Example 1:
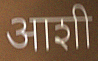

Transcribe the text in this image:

आशी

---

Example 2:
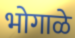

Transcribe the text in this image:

भोगाळे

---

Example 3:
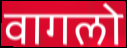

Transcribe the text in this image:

वागलो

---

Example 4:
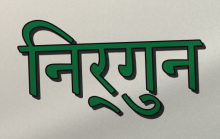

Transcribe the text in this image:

निर्गुन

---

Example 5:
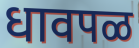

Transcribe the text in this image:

धावपळ